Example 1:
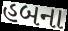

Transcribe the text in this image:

હબના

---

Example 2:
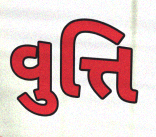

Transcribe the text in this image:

વુત્તિ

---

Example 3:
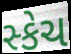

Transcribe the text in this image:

સ્કેચ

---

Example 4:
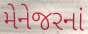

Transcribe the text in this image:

મેનેજરનાં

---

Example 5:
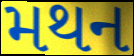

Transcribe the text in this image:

મથન